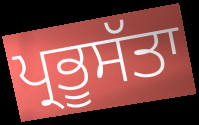
ਪ੍ਰਭੂਸੱਤਾ